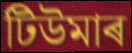
টিউমাৰ